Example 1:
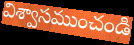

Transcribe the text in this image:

విశ్వాసముంచండి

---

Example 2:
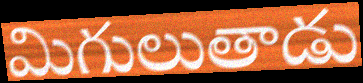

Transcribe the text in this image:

మిగులుతాడు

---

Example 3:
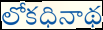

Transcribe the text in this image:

లోకధినాథ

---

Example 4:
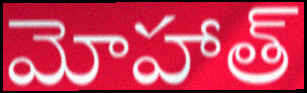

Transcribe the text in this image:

మోహాత్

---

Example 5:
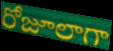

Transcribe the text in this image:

రోజూలాగా